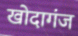
खोदागंज